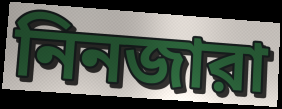
নিনজারা